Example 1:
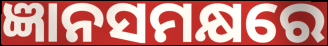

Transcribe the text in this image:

ଜ୍ଞାନସମକ୍ଷରେ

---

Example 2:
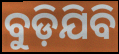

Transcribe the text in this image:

ବୁଡ଼ିଯିବି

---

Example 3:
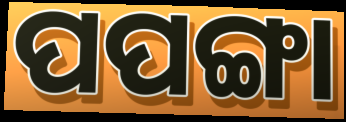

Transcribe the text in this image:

ପପଙ୍ଗା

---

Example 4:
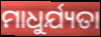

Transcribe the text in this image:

ମାଧୁର୍ଯ୍ୟତା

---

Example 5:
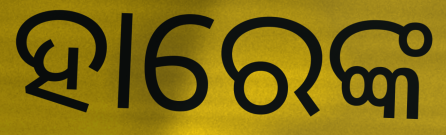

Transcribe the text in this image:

ହାରେଙ୍କ